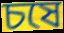
চষে